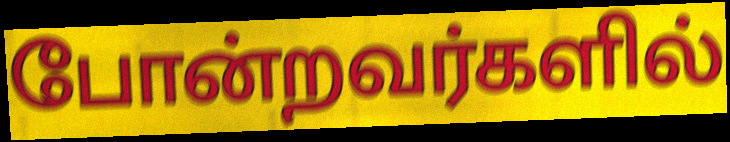
போன்றவர்களில்